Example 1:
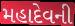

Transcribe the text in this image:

મહાદેવની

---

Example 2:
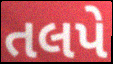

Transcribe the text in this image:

તલપે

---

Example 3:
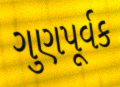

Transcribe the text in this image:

ગુણપૂર્વક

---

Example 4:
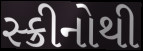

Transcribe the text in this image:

સ્ક્રીનોથી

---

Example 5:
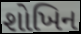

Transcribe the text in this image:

શોખિન